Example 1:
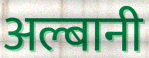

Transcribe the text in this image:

अल्बानी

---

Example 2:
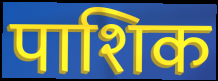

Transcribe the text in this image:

पाशिक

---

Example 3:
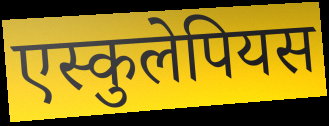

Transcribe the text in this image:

एस्कुलेपियस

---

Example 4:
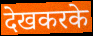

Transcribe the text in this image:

देखकरके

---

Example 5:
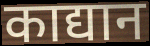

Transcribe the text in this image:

काद्यान